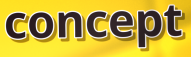
concept